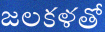
జలకళతో